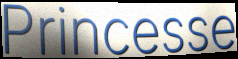
Princesse